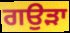
ਗਉੜਾ